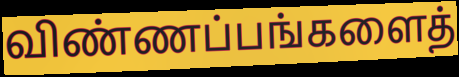
விண்ணப்பங்களைத்